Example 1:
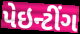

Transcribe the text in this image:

પેઇન્ટીંગ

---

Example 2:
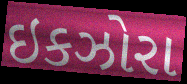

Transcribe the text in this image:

ઇકઝોરા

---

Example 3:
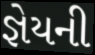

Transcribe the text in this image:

જ્ઞેયની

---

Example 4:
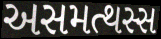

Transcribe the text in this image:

અસમત્થસ્સ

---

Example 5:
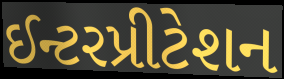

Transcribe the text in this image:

ઈન્ટરપ્રીટેશન